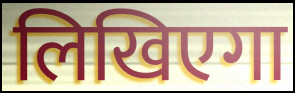
लिखिएगा